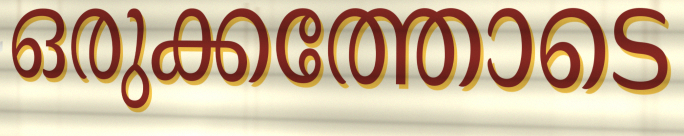
ഒരുക്കത്തോടെ